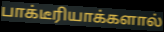
பாக்டீரியாக்களால்